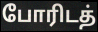
போரிடத்